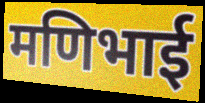
मणिभाई